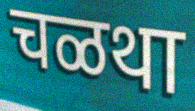
चळथा